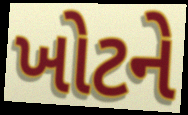
ખોટને